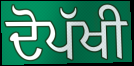
ਦੋਪੱਖੀ